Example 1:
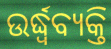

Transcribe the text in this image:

ଉର୍ଦ୍ଧ୍ୱବ୍ୟକ୍ତି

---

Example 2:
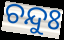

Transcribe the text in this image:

ଚନ୍ଦୁଃ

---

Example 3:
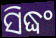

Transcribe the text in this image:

ସିଦ୍ଧଂ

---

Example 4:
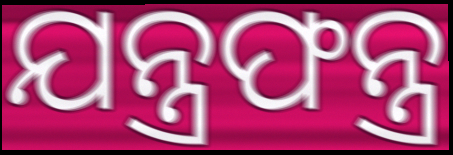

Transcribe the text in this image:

ଯନ୍ତ୍ରଫନ୍ତ୍ର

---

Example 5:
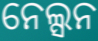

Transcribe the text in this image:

ନେଲ୍ସନ